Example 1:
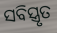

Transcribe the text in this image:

ସବିସ୍ତ୍ରୃତ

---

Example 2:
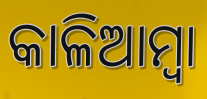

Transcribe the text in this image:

କାଳିଆମ୍ବା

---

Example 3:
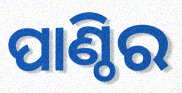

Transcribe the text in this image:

ପାଣ୍ଠିର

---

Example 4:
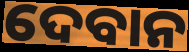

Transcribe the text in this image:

ଦେବାନ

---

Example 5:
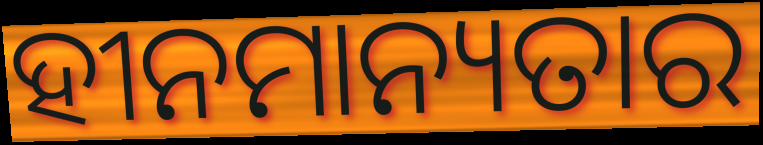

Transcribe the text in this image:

ହୀନମାନ୍ୟତାର